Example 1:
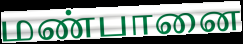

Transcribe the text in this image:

மண்பானை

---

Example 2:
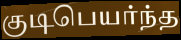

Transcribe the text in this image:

குடிபெயர்ந்த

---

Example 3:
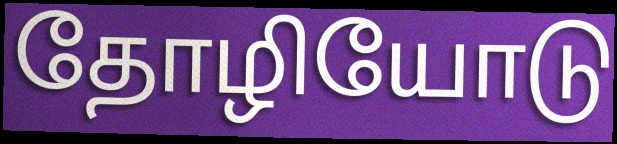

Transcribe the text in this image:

தோழியோடு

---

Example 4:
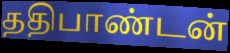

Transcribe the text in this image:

ததிபாண்டன்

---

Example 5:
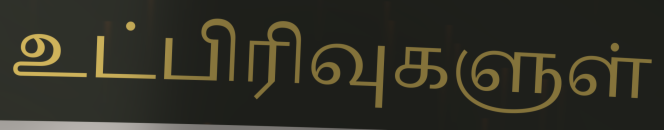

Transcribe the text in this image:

உட்பிரிவுகளுள்